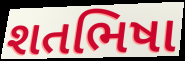
શતભિષા